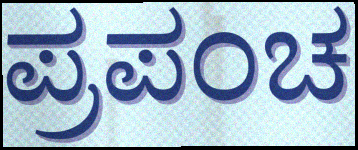
ಪ್ರಪಂಚ